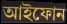
আইফোন